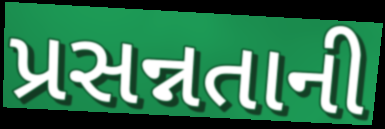
પ્રસન્નતાની